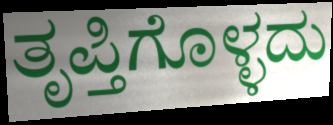
ತೃಪ್ತಿಗೊಳ್ಳದು